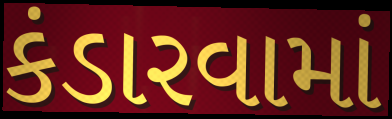
કંડારવામાં